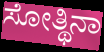
ಸೋತ್ಥಿನಾ